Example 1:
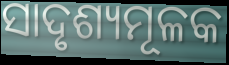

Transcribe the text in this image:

ସାଦୃଶ୍ୟମୂଳକ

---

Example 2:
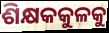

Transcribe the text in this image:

ଶିକ୍ଷକକୁଳକୁ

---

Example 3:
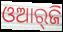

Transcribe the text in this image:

ଓଆର୍‌ଜି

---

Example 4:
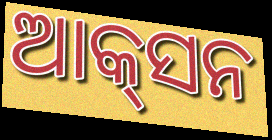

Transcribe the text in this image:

ଆକ୍‌ସନ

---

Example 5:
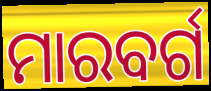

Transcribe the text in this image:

ମାରବର୍ଗ